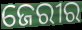
ଜେରୀର